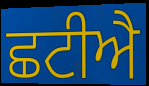
ਛਟੀਐ